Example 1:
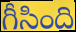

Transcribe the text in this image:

గీసింది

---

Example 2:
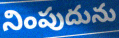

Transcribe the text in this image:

నింపుదును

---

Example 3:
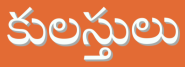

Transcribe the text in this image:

కులస్తులు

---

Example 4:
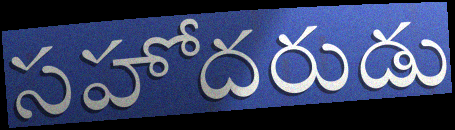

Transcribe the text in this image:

సహోదరుడు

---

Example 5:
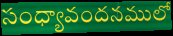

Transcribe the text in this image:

సంధ్యావందనములో